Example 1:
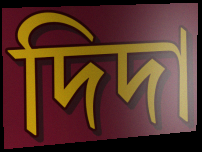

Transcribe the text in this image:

দিদা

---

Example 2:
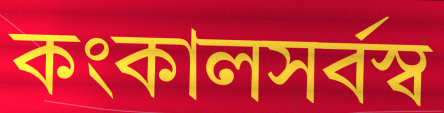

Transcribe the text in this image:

কংকালসর্বস্ব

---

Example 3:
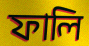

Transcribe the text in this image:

ফালি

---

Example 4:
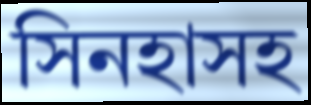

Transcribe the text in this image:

সিনহাসহ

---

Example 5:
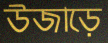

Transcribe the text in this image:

উজাড়ে